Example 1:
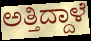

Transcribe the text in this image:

ಅತ್ತಿದ್ದಾಳೆ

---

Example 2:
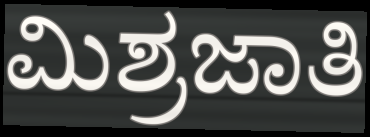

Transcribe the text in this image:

ಮಿಶ್ರಜಾತಿ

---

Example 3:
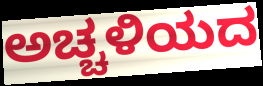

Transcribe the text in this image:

ಅಚ್ಚಳಿಯದ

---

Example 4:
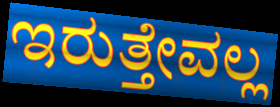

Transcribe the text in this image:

ಇರುತ್ತೇವಲ್ಲ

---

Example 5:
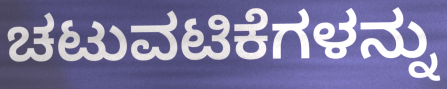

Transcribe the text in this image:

ಚಟುವಟಿಕೆಗಳನ್ನು